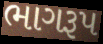
ભાગરૂપ